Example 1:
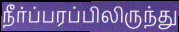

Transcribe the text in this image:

நீர்ப்பரப்பிலிருந்து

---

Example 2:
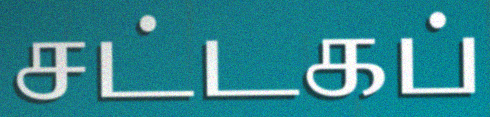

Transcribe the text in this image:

சட்டகப்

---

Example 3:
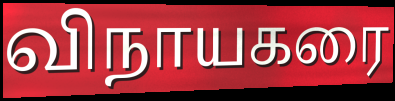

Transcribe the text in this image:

விநாயகரை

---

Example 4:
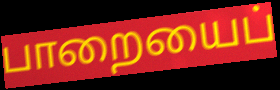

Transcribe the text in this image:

பாறையைப்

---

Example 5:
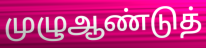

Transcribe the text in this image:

முழுஆண்டுத்